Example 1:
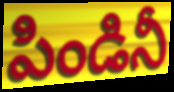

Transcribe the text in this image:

పిండినీ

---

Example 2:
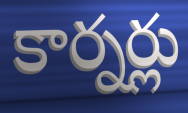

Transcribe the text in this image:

కార్నర్లు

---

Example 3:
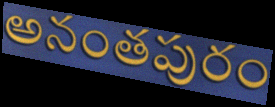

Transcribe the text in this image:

అనంతపురం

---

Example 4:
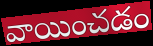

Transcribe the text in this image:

వాయించడం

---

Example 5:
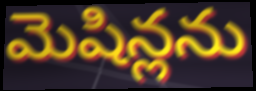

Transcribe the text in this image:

మెషిన్లను